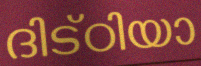
ദിട്ഠിയാ